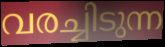
വരച്ചിടുന്ന